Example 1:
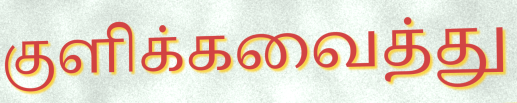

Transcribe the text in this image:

குளிக்கவைத்து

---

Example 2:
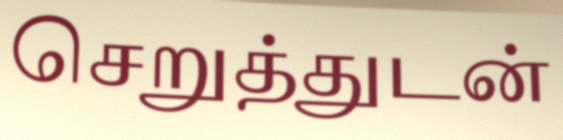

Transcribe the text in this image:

செறுத்துடன்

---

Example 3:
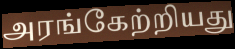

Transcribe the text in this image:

அரங்கேற்றியது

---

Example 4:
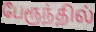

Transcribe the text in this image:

பேரூந்தில்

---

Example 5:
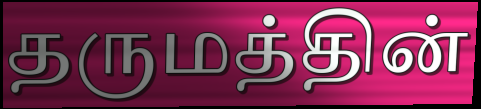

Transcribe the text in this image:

தருமத்தின்